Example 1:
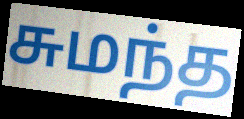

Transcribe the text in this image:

சுமந்த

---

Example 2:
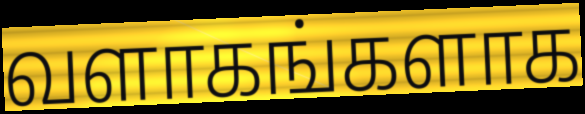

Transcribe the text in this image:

வளாகங்களாக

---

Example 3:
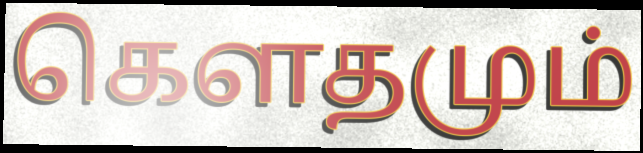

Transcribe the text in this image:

கெளதமும்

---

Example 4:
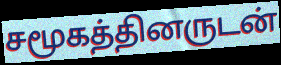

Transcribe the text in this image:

சமூகத்தினருடன்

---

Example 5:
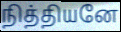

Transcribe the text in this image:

நித்தியனே